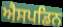
ਐਸਪਡਿਨ